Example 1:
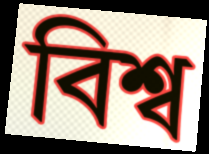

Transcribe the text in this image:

বিশ্ব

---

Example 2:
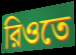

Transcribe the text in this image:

রিওতে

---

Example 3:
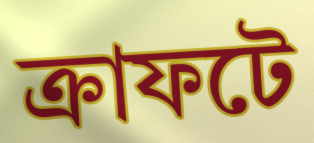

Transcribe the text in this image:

ক্রাফটে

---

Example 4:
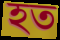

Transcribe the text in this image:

হত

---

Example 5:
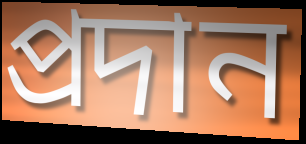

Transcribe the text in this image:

প্রদান